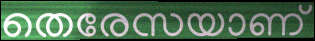
തെരേസയാണ്